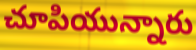
చూపియున్నారు